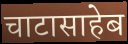
चाटासाहेब